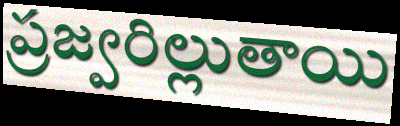
ప్రజ్వరిల్లుతాయి